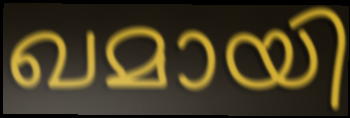
ഖമായി